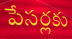
పేసర్లకు